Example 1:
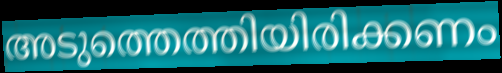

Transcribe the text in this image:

അടുത്തെത്തിയിരിക്കണം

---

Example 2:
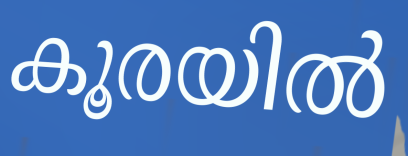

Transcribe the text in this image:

കൂരയിൽ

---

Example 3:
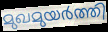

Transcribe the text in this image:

മുഖമുയർത്തി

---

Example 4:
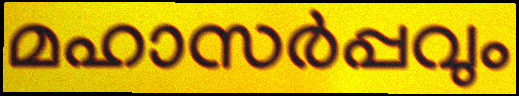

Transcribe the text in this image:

മഹാസർപ്പവും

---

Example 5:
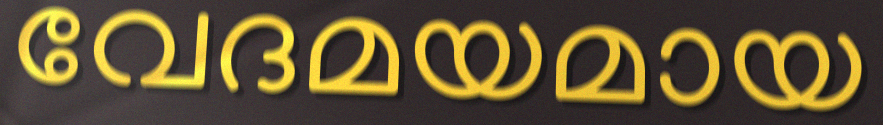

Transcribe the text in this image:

വേദമയമായ